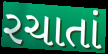
રચાતાં